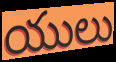
యులు